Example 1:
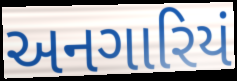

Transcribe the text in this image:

અનગારિયં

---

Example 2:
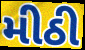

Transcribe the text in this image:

મીઠી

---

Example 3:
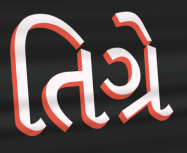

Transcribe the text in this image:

તિગ્રે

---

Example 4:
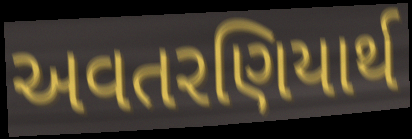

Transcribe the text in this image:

અવતરણિયાર્થ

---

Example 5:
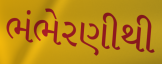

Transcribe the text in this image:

ભંભેરણીથી